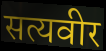
सत्यवीर